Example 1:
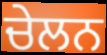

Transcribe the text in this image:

ਚੇਲਨ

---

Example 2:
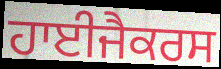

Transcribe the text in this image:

ਹਾਈਜੈਕਰਸ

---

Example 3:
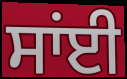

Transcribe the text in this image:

ਸਾਂਈ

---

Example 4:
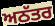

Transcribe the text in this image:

ਅਠੱਤਰ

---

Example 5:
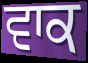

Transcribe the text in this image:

ਵਾਕ